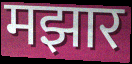
मझार